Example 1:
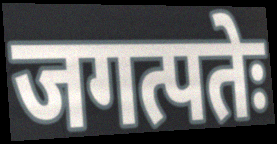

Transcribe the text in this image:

जगत्पतेः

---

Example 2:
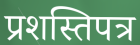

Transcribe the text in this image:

प्रशस्तिपत्र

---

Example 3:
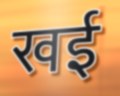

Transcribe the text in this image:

खई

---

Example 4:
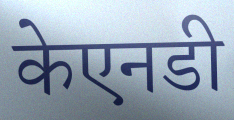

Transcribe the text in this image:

केएनडी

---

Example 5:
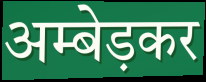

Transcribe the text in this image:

अम्बेड़कर